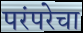
परंपरेचा